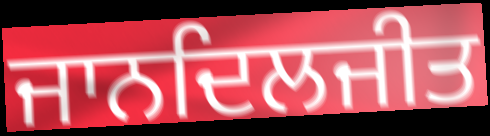
ਜਾਨਦਿਲਜੀਤ